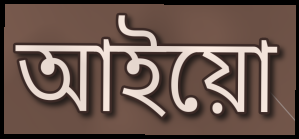
আইয়ো